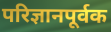
परिज्ञानपूर्वक